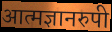
आत्मज्ञानरुपी